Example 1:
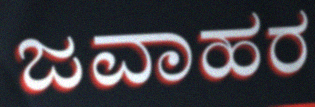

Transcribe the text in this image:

ಜವಾಹರ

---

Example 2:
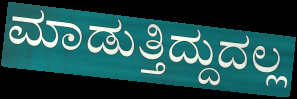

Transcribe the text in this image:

ಮಾಡುತ್ತಿದ್ದುದಲ್ಲ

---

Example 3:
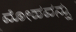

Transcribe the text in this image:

ಮೋಹವನ್ನು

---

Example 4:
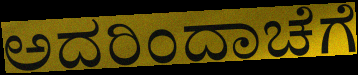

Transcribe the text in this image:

ಅದರಿಂದಾಚೆಗೆ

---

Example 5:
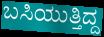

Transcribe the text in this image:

ಬಸಿಯುತ್ತಿದ್ದ